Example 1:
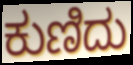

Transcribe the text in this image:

ಕುಣಿದು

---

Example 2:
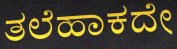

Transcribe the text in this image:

ತಲೆಹಾಕದೇ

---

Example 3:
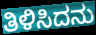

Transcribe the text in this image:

ತಿಳಿಸಿದನು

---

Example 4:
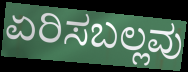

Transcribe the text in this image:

ಏರಿಸಬಲ್ಲವು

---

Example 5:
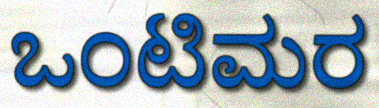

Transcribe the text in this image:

ಒಂಟಿಮರ